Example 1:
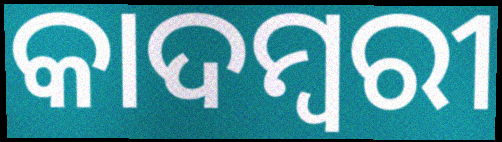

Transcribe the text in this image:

କାଦମ୍ୱରୀ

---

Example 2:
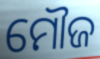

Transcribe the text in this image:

ମୌଜ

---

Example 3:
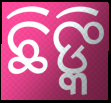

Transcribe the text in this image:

ଛିଙ୍କି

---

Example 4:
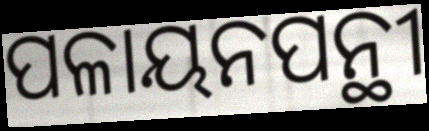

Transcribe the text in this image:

ପଳାୟନପନ୍ଥୀ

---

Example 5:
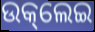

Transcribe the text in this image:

ଉକ୍‌ଲେଇ